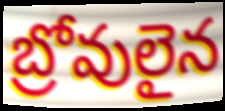
బ్రోవులైన